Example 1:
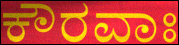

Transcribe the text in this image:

ಕೌರವಾಃ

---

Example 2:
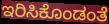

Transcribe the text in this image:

ಇರಿಸಿಕೊಂಡಂತೆ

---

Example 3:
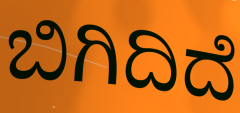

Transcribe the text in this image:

ಬಿಗಿದಿದೆ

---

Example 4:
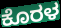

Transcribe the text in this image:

ಕೊರಳ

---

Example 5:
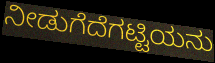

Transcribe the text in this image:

ನೀಡುಗೆದೆಗಟ್ಟಿಯನು